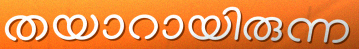
തയാറായിരുന്ന